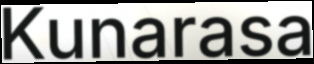
Kunarasa